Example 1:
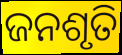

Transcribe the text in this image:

ଜନଶୃତି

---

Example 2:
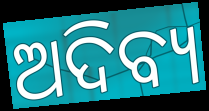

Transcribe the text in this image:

ଅଦିବ୍ୟ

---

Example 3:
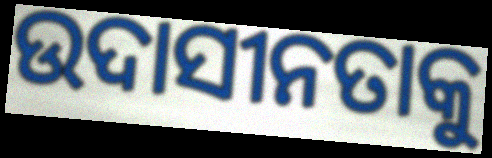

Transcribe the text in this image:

ଉଦାସୀନତାକୁ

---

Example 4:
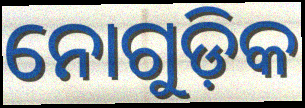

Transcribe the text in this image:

ନୋଗୁଡ଼ିକ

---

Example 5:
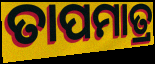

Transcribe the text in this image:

ତାପମାତ୍ର